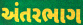
અંતરભાગ